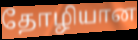
தோழியான